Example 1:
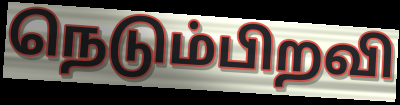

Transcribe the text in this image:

நெடும்பிறவி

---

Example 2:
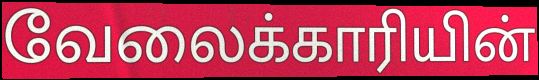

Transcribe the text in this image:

வேலைக்காரியின்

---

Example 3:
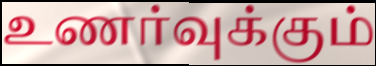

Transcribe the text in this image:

உணர்வுக்கும்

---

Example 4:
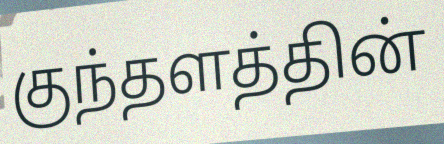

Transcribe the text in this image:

குந்தளத்தின்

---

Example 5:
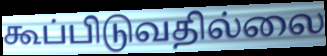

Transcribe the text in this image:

கூப்பிடுவதில்லை